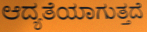
ಆದ್ಯತೆಯಾಗುತ್ತದೆ